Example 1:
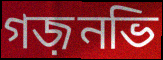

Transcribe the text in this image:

গজ়নভি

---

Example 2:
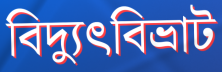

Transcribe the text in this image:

বিদ্যুৎবিভ্রাট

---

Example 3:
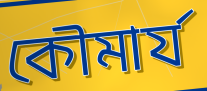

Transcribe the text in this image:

কৌমার্য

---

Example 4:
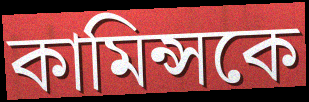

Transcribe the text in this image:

কামিন্সকে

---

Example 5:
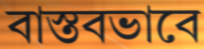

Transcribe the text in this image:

বাস্তবভাবে